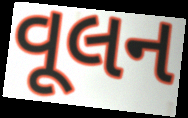
વૂલન